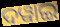
ଦୱାଇ